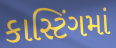
કાસ્ટિંગમાં